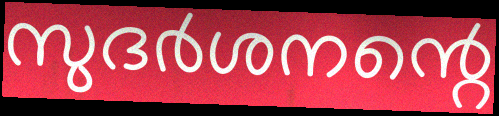
സുദർശനന്റെ